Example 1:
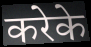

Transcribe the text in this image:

करेके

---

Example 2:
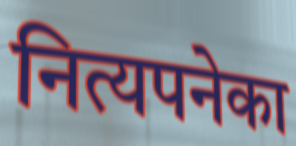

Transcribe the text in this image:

नित्यपनेका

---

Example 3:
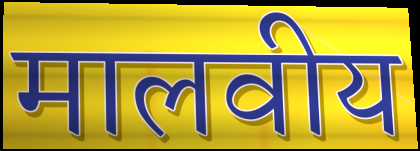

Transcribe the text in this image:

मालवीय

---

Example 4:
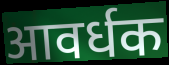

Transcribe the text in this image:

आवर्धक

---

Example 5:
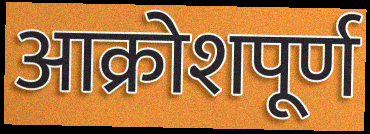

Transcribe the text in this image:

आक्रोशपूर्ण